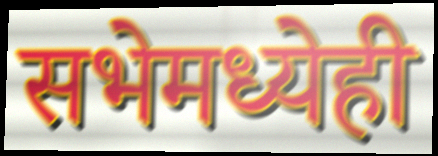
सभेमध्येही